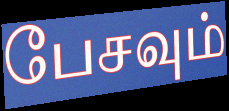
பேசவும்